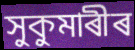
সুকুমাৰীৰ